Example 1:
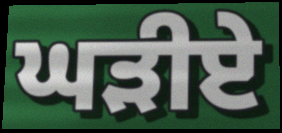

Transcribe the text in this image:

ਘੜੀਏ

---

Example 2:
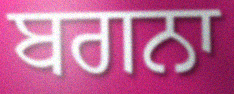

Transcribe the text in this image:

ਬਗਨਾ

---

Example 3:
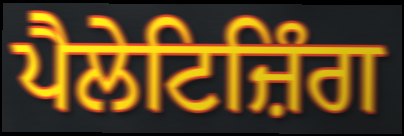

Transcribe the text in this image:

ਪੈਲੇਟਿਜ਼ਿੰਗ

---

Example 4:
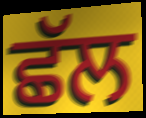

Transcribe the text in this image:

ਛੱਲ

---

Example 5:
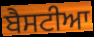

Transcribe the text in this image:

ਬੈਸਟੀਆ